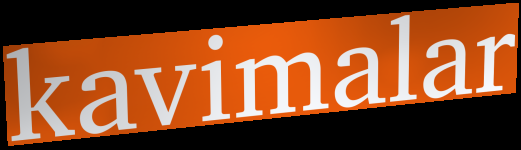
kavimalar